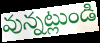
వున్నట్లుండి